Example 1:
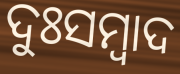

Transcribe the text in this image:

ଦୁଃସମ୍ୱାଦ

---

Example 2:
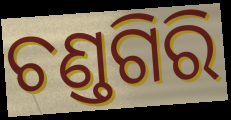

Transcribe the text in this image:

ଚଣ୍ଡଗିରି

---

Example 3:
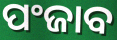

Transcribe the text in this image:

ପଂଜାବ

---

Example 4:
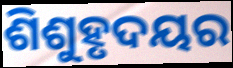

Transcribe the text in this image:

ଶିଶୁହୃଦୟର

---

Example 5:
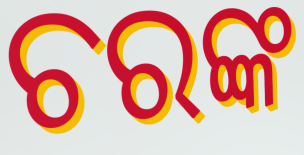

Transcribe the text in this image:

ଚରଙ୍କ